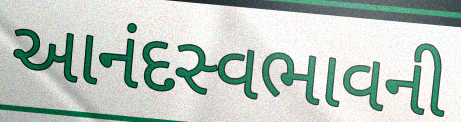
આનંદસ્વભાવની